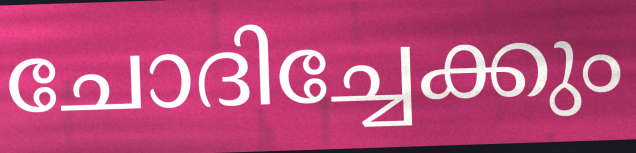
ചോദിച്ചേക്കും